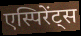
एस्पिरेंट्स